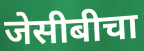
जेसीबीचा